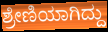
ಶ್ರೇಣಿಯಾಗಿದ್ದು